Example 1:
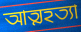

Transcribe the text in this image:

আত্মহত্যা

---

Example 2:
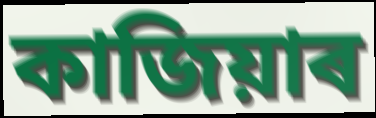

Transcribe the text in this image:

কাজিয়াৰ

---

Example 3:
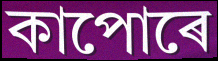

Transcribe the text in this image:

কাপোৰে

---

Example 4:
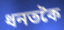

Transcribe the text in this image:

ধনতকৈ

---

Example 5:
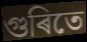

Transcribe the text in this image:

গুৰিতে